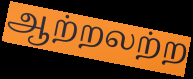
ஆற்றலற்ற